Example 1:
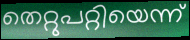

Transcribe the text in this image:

തെറ്റുപറ്റിയെന്ന്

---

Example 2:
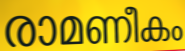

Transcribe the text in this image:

രാമണീകം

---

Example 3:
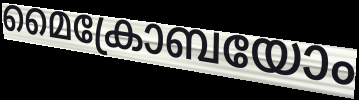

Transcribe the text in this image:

മൈക്രോബയോം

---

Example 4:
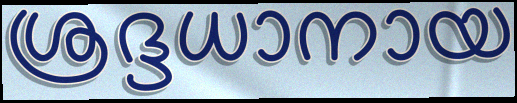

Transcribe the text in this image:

ശ്രദ്ദധാനായ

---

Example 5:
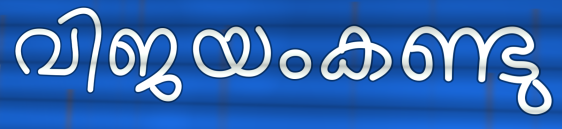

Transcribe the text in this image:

വിജയംകണ്ടു